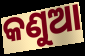
କଣୁଆ